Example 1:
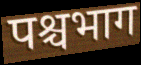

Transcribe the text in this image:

पश्चभाग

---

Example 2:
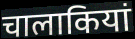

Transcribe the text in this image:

चालाकियां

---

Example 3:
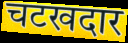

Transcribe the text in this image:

चटखदार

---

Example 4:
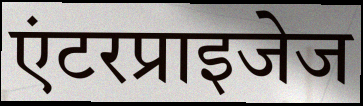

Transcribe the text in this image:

एंटरप्राइजेज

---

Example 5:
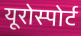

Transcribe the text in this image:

यूरोस्पोर्ट